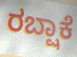
ರಬ್ಷಾಕೆ